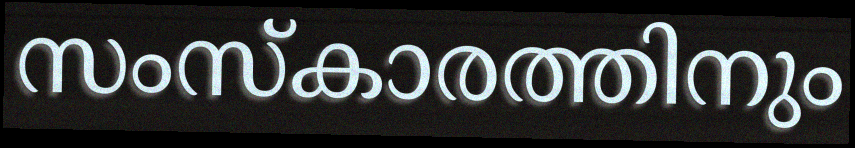
സംസ്കാരത്തിനും